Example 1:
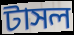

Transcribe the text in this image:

টাসল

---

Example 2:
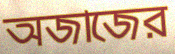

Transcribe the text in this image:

অজাজের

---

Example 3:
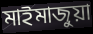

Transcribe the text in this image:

মাইমাজুয়া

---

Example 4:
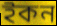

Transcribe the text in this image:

ইকন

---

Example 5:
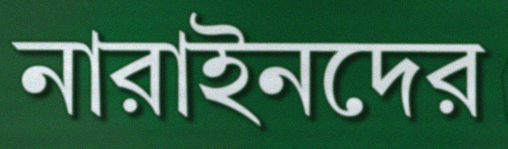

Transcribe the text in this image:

নারাইনদের